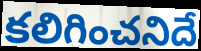
కలిగించనిదే